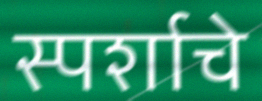
स्पर्शाचे